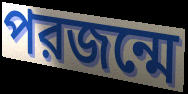
পরজন্মে